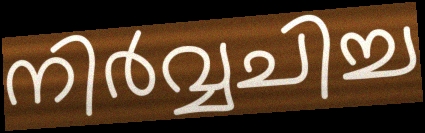
നിർവ്വചിച്ച